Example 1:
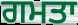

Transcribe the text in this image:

ਗਮਤਾ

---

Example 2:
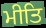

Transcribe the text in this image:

ਮੀਤਿ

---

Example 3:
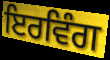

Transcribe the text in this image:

ਇਰਵਿੰਗ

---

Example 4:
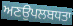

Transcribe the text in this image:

ਅਣਉਪਲਬਧਤਾ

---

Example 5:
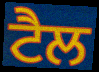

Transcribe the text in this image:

ਟੈਲ